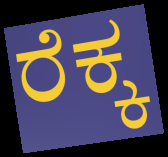
ರೆಕ್ಕ